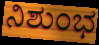
ನಿಶುಂಭ